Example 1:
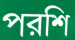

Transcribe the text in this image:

পরশি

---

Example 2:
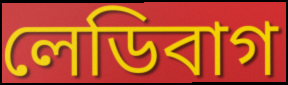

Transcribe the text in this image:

লেডিবাগ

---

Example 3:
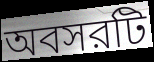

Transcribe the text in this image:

অবসরটি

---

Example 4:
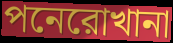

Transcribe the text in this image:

পনেরোখানা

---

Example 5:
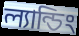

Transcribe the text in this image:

ল্যান্ডিং